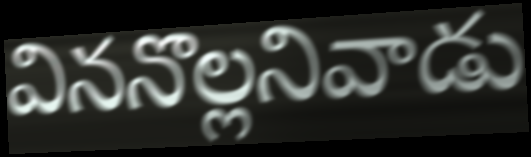
విననొల్లనివాడు